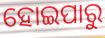
ହୋଇପାରୁ